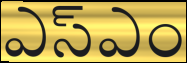
ఎస్ఎం